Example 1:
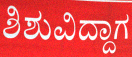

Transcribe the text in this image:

ಶಿಶುವಿದ್ದಾಗ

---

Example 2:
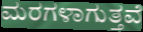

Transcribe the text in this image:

ಮರಗಳಾಗುತ್ತವೆ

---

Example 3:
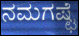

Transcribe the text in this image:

ನಮಗಷ್ಟೆ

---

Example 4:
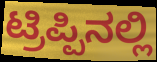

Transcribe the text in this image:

ಟ್ರಿಪ್ಪಿನಲ್ಲಿ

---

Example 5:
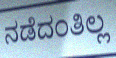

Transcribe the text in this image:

ನಡೆದಂತಿಲ್ಲ